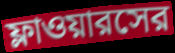
ফ্লাওয়ারসের